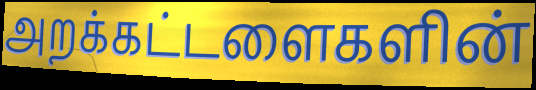
அறக்கட்டளைகளின்